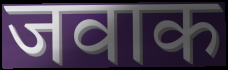
जवाक